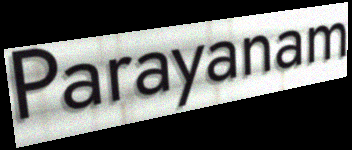
Parayanam